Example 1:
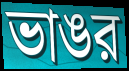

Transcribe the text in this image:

ভাঙর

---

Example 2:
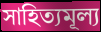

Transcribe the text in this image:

সাহিত্যমূল্য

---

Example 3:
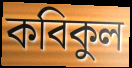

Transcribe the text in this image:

কবিকুল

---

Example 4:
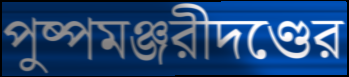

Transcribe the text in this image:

পুষ্পমঞ্জরীদণ্ডের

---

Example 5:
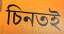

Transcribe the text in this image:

চিনতই